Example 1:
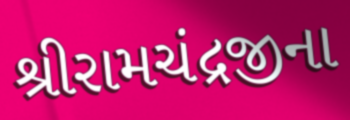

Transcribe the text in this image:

શ્રીરામચંદ્રજીના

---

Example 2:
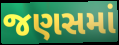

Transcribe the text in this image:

જણસમાં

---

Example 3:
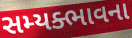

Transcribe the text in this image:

સમ્યક્ભાવના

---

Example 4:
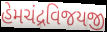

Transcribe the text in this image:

હેમચંદ્રવિજયજી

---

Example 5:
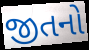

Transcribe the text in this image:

જીતનો